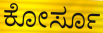
ಕೋರ್ಸೂ